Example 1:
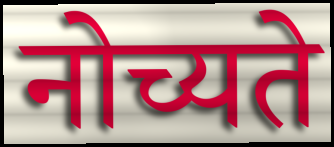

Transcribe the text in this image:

नोच्यते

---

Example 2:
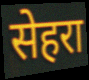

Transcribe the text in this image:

सेहरा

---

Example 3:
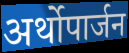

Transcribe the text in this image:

अर्थोपार्जन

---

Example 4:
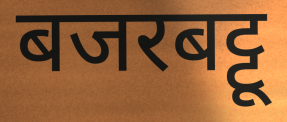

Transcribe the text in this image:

बजरबट्टू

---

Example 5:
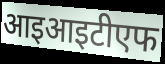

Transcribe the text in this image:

आइआइटीएफ